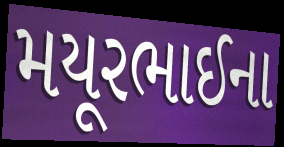
મયૂરભાઈના